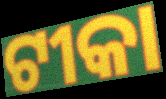
ଟୀକା